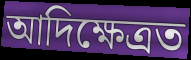
আদিক্ষেত্ৰত